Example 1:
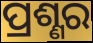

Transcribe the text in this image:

ପ୍ରଶ୍ଣର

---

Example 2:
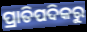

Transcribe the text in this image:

ପ୍ରାତିପଦିକରୁ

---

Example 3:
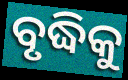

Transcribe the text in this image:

ବୃଦ୍ଧିକୁ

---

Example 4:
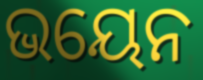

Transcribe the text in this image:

ଭୟେନ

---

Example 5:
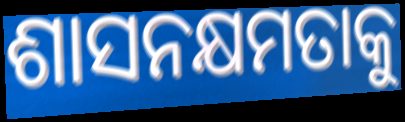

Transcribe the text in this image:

ଶାସନକ୍ଷମତାକୁ